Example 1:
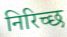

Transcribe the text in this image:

निरिच्छ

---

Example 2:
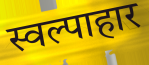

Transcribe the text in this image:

स्वल्पाहार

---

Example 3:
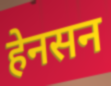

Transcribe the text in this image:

हेनसन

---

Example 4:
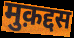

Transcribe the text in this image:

मुक़द्दस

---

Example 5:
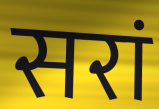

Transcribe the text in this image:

सरां